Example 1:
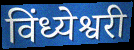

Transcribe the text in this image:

विंध्येश्वरी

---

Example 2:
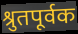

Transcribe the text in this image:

श्रुतपूर्वक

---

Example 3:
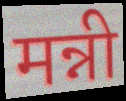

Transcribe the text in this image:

मन्नी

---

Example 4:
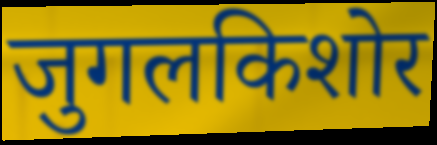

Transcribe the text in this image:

जुगलकिशोर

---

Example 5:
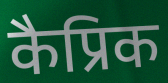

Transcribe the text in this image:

कैप्रिक